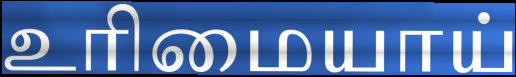
உரிமையாய்